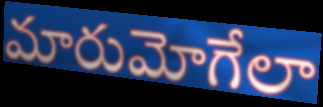
మారుమోగేలా